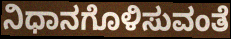
ನಿಧಾನಗೊಳಿಸುವಂತೆ